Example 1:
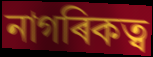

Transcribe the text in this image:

নাগৰিকত্ব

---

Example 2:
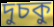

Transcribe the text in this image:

দুচকু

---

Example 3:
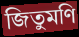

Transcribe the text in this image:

জিতুমণি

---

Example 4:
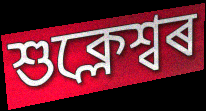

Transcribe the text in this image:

শুক্লেশ্বৰ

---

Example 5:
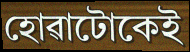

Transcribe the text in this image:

হোৱাটোকেই